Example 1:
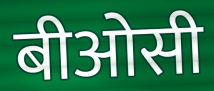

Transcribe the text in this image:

बीओसी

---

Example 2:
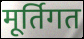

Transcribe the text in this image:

मूर्तिगत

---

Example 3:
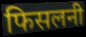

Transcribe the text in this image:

फिसलनी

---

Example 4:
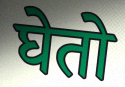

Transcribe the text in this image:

घेतो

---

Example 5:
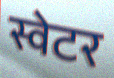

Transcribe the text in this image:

स्वेटर